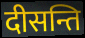
दीसन्ति